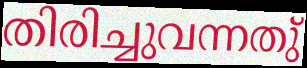
തിരിച്ചുവന്നതു്